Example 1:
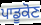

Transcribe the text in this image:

ਪਾਡੂਕੋਣ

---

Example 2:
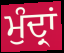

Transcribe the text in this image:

ਮੁੰਦ੍ਰਾਂ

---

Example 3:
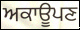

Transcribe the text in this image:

ਅਕਾਊਪਣ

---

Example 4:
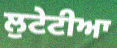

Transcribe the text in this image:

ਲੁਟੇਟੀਆ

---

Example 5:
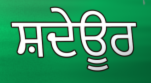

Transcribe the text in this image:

ਸ਼ਦੇਊਰ